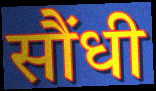
सौंधी